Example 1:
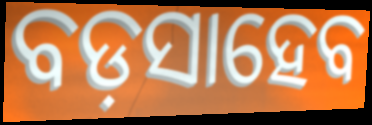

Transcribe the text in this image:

ବଡ଼ସାହେବ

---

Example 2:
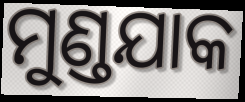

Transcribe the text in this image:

ମୁଣ୍ଡଯାକ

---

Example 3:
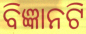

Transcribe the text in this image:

ବିଜ୍ଞାନଟି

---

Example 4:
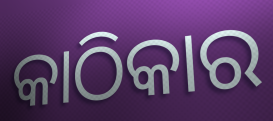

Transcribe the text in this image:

କାଠିକାର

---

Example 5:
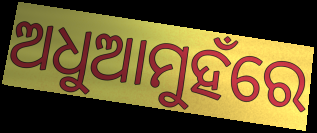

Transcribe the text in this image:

ଅଧୁଆମୁହଁରେ